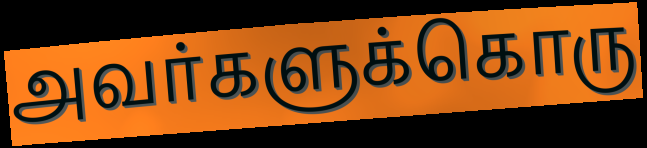
அவர்களுக்கொரு